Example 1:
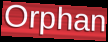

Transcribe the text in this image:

Orphan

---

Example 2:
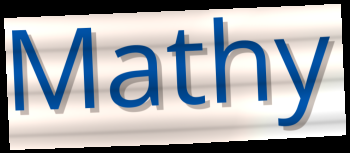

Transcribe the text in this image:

Mathy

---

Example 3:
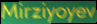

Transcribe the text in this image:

Mirziyoyev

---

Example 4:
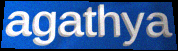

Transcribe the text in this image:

agathya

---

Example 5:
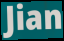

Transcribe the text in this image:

Jian